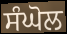
ਸੰਘੋਲ